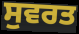
ਸੁਵਰਤ